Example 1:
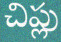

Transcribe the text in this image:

చిప్లు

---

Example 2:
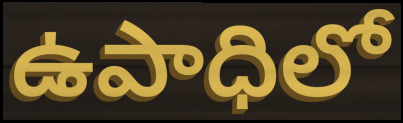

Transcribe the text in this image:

ఉపాధిలో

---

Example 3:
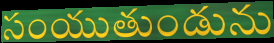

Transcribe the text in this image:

సంయుతుండును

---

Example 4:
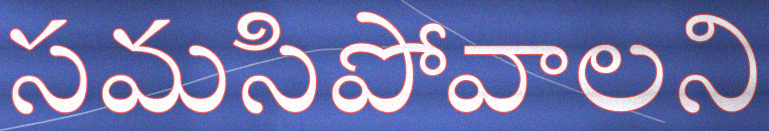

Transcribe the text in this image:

సమసిపోవాలని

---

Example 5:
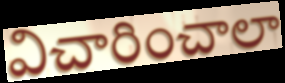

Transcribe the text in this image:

విచారించాలా